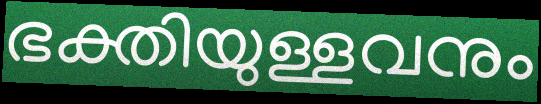
ഭക്തിയുള്ളവനും